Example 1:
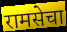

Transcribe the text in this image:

रामसेचा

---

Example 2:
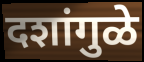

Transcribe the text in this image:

दशांगुळे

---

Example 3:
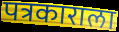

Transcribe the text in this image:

पत्रकाराला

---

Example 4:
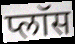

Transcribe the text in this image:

प्लॉस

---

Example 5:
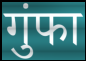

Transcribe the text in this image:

गुंफा